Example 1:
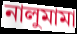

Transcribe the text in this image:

নালুমামা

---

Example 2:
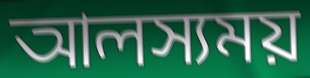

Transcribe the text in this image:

আলস্যময়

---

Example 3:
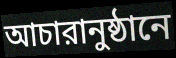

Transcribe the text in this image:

আচারানুষ্ঠানে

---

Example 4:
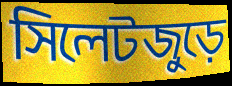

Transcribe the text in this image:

সিলেটজুড়ে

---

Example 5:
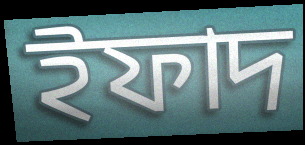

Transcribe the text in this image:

ইফাদ